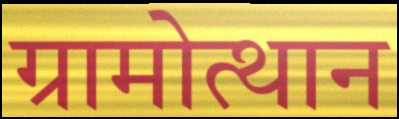
ग्रामोत्थान